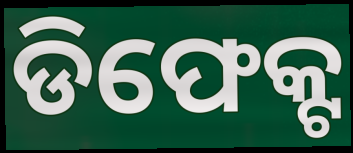
ଡିଫେକ୍ଟ